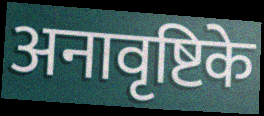
अनावृष्टिके